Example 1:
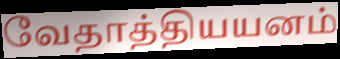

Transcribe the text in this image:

வேதாத்தியயனம்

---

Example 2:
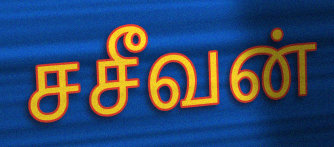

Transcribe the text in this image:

சசீவன்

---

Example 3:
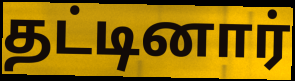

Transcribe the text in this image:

தட்டினார்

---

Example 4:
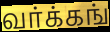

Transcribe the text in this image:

வர்க்கங்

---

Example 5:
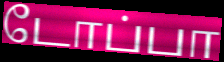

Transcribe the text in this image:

டோப்பா